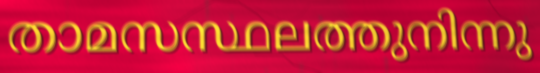
താമസസ്ഥലത്തുനിന്നു